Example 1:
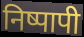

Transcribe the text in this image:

निष्पापी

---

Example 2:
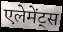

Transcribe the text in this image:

एलेमेंट्स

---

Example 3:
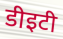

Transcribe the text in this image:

डीइटी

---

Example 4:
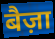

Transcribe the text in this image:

बैज़ा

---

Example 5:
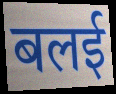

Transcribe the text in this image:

बलई